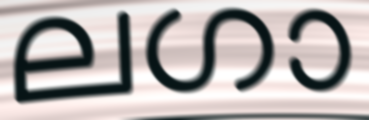
ലഗാ